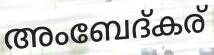
അംബേദ്കര്